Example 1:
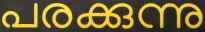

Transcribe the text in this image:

പരക്കുന്നു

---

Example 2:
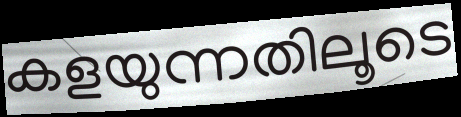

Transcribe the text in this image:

കളയുന്നതിലൂടെ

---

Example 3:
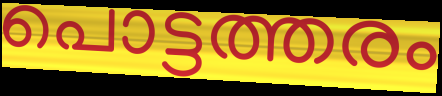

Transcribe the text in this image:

പൊട്ടത്തരം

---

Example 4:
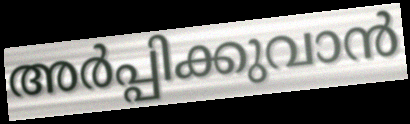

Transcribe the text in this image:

അർപ്പിക്കുവാൻ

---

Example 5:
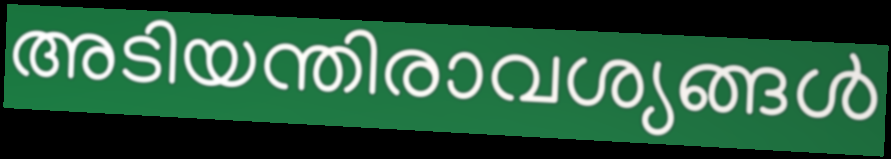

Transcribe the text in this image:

അടിയന്തിരാവശ്യങ്ങൾ